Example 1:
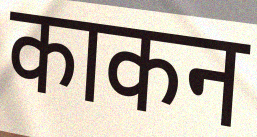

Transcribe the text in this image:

काकन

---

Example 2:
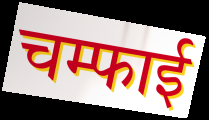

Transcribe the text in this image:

चम्फाई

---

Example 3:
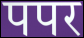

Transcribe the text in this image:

पपर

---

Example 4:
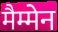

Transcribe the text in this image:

मैम्मेन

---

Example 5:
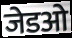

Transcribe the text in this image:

जेडओ